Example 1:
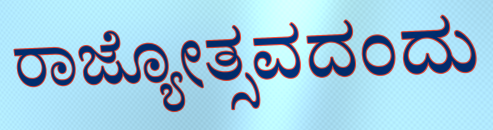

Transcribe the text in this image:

ರಾಜ್ಯೋತ್ಸವದಂದು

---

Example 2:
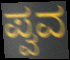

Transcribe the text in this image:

ಪ್ವವ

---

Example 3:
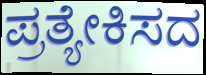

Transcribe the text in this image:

ಪ್ರತ್ಯೇಕಿಸದ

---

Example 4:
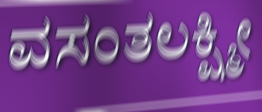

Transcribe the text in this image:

ವಸಂತಲಕ್ಷ್ಮೀ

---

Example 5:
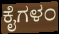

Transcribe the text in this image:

ಕೈಗಳಂ